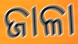
ଜାଳା